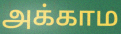
அக்காம